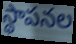
స్థాపనల